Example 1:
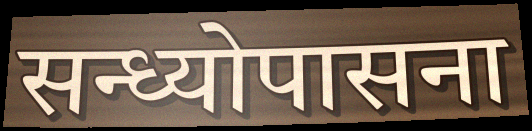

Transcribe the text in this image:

सन्ध्योपासना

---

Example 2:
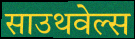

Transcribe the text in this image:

साउथवेल्स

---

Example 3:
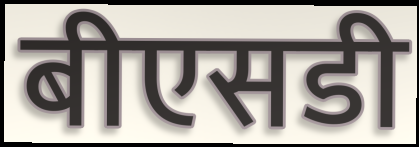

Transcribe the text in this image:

बीएसडी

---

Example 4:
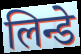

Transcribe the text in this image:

लिन्डे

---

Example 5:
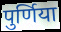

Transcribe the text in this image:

पुर्णिया